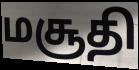
மசூதி